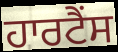
ਹਾਰਟੈਂਸ